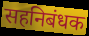
सहनिबंधक